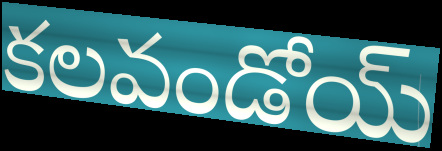
కలవండోయ్